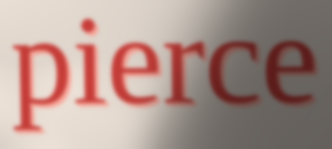
pierce